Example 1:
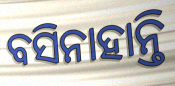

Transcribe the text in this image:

ବସିନାହାନ୍ତି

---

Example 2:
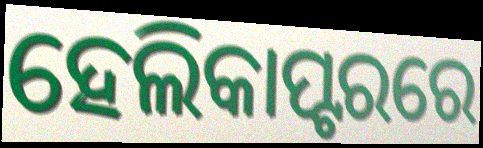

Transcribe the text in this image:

ହେଲିକାପ୍ଟରରେ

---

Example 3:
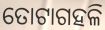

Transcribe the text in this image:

ତୋଟାଗହଳି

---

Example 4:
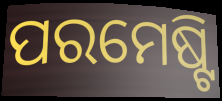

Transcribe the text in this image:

ପରମେଷ୍ଟି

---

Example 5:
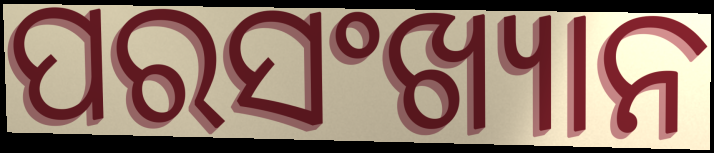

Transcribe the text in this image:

ପରସଂଖ୍ୟାନ